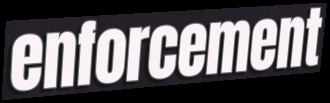
enforcement